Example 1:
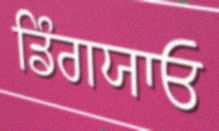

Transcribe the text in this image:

ਡਿੰਗਯਾਓ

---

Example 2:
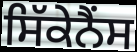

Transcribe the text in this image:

ਸਿੱਕੇਨੈਂਸ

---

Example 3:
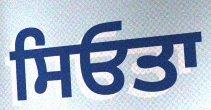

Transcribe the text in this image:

ਸਿਓਤਾ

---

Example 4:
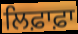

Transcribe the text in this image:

ਲਿਫ਼ਾਫ਼ਾ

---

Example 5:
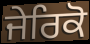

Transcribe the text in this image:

ਜੇਰਿਕੋ